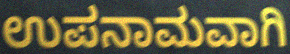
ಉಪನಾಮವಾಗಿ